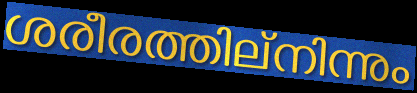
ശരീരത്തില്നിന്നും